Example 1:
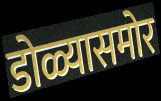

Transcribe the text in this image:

डोळ्यासमोर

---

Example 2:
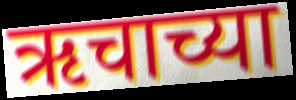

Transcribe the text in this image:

ऋचाच्या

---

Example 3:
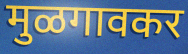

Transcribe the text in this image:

मुळगावकर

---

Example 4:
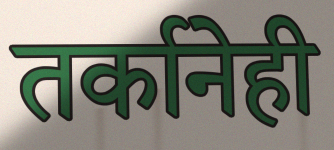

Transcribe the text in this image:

तर्कानेही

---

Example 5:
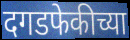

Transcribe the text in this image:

दगडफेकीच्या